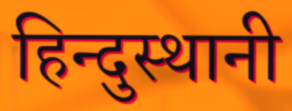
हिन्दुस्थानी